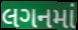
લગનમાં